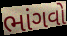
ભાંગવો